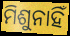
ମିଶୁନାହିଁ